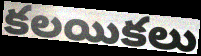
కలయికలు